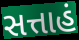
સત્તાહં